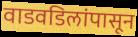
वाडवडिलांपासून